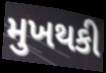
મુખથકી